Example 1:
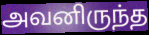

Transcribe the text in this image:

அவனிருந்த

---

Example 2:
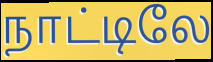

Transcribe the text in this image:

நாட்டிலே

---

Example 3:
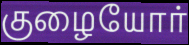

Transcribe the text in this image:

குழையோர்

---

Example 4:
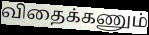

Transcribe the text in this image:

விதைக்கணும்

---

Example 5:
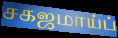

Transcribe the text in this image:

சகஜமாய்ப்